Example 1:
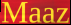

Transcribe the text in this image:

Maaz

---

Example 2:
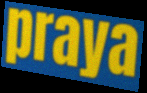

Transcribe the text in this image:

praya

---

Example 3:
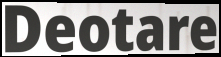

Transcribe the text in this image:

Deotare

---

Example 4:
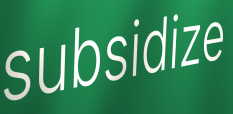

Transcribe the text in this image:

subsidize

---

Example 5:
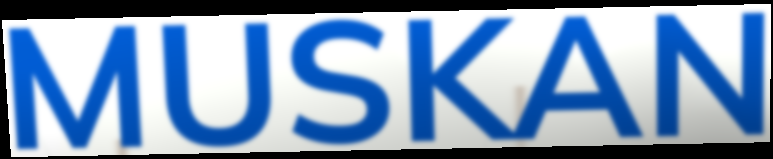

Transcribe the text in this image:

MUSKAN